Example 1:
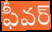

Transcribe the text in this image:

ఫీవర్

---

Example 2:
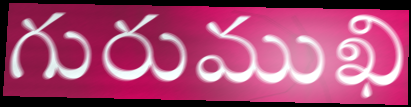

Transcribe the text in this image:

గురుముఖి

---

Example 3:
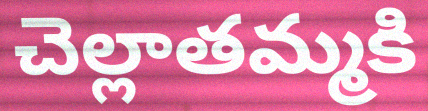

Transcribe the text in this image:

చెల్లాతమ్మకి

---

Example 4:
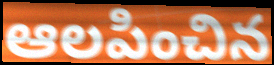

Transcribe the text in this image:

ఆలపించిన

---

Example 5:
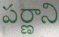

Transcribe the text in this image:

పర్ణాని